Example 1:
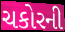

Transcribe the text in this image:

ચકોરની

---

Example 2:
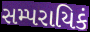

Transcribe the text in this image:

સમ્પરાયિકં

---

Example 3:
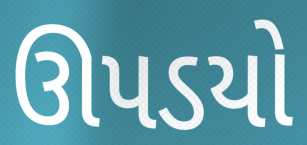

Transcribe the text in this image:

ઊપડયો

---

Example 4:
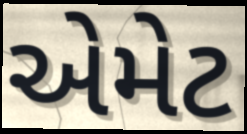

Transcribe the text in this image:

એમેટ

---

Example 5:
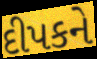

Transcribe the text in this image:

દીપકને